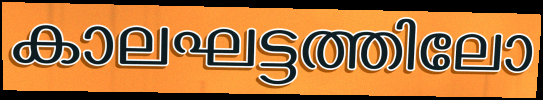
കാലഘട്ടത്തിലോ